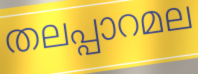
തലപ്പാറമല